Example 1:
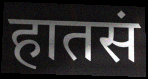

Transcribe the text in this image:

हातसं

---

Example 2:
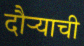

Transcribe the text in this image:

दौर्‍याची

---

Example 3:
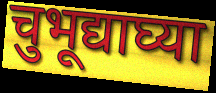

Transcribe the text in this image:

चुभूद्याघ्या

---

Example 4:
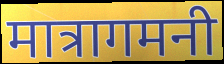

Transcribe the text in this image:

मात्रागमनी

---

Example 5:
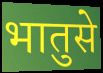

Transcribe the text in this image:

भातुसे